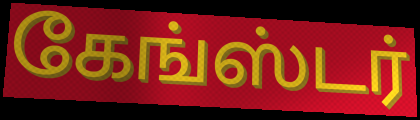
கேங்ஸ்டர்